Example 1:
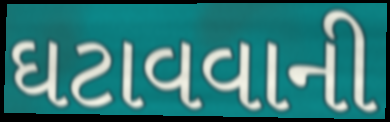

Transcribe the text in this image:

ઘટાવવાની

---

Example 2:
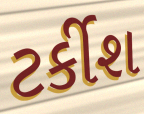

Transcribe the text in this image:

ટર્કીશ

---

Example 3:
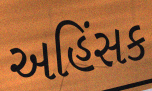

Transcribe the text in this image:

અહિંસક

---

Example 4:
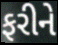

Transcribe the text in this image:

ફરીને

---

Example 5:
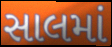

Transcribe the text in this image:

સાલમાં